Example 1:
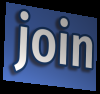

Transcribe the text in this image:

join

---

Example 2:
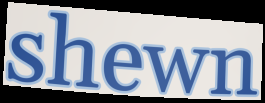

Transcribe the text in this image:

shewn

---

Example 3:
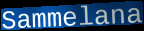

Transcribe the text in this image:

Sammelana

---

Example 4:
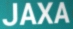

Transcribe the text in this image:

JAXA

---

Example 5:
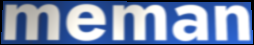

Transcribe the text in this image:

meman